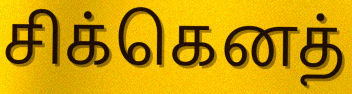
சிக்கெனத்